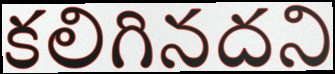
కలిగినదని